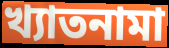
খ্যাতনামা